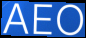
AEO